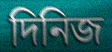
দিনিজ